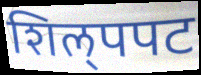
शिल्पपट